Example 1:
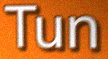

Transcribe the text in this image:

Tun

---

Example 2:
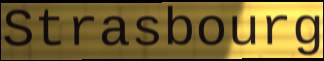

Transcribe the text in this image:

Strasbourg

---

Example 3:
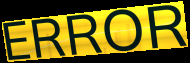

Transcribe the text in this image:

ERROR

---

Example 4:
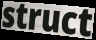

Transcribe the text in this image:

struct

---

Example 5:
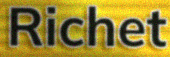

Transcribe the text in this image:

Richet